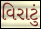
વિરાટું